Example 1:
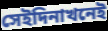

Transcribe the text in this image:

সেইদিনাখনেই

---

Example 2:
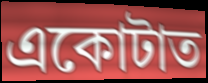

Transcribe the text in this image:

একোটাত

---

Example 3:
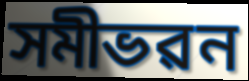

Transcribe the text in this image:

সমীভৱন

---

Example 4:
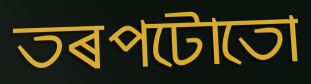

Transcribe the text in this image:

তৰপটোতো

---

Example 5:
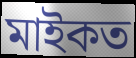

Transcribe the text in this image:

মাইকত